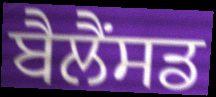
ਬੈਲੈਂਸਡ